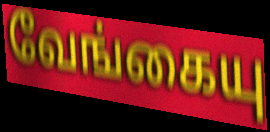
வேங்கையு